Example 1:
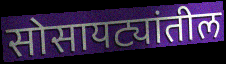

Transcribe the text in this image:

सोसायट्यांतील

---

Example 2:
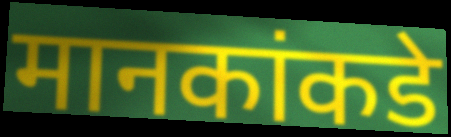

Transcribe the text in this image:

मानकांकडे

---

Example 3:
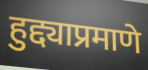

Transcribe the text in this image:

हुद्द्याप्रमाणे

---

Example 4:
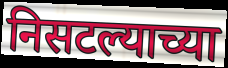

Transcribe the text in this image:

निसटल्याच्या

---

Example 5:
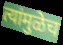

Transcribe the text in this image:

त्यांमुळेच